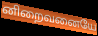
னிறைவனையே